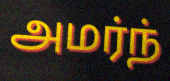
அமர்ந்